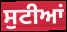
ਸੁਟੀਆਂ